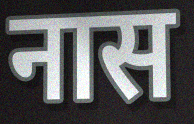
नास